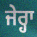
ਜੇਰ੍ਹਾ